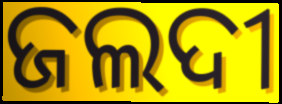
ଜଲଦୀ